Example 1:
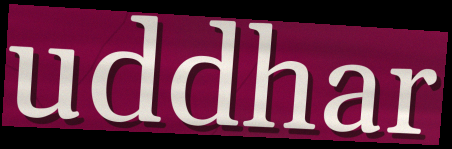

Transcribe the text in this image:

uddhar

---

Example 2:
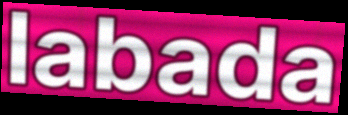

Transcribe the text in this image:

labada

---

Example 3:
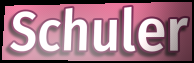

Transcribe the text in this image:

Schuler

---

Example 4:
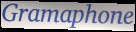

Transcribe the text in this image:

Gramaphone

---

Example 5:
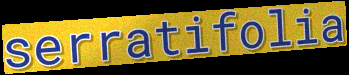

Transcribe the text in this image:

serratifolia